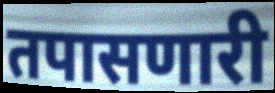
तपासणारी